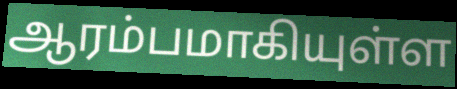
ஆரம்பமாகியுள்ள